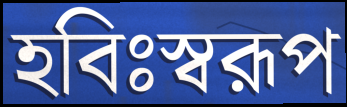
হবিঃস্বরূপ